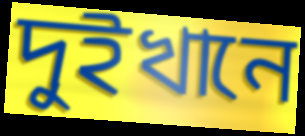
দুইখানে